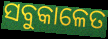
ସବୁକାଳେତ